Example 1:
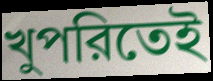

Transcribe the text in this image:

খুপরিতেই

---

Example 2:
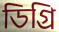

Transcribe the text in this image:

ডিগ্রি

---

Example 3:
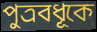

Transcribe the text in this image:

পুত্রবধূকে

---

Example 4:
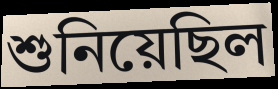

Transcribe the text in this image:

শুনিয়েছিল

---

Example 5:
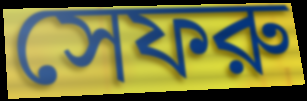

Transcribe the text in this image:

সেফরু